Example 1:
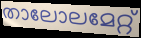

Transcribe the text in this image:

താലോലമേറ്റ്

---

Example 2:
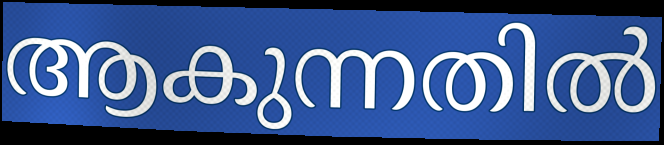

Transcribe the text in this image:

ആകുന്നതിൽ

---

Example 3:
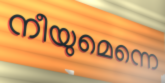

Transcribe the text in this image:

നീയുമെന്നെ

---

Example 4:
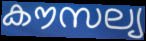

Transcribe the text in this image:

കൗസല്യ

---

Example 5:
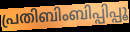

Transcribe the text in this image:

പ്രതിബിംബിപ്പിപ്പൂ